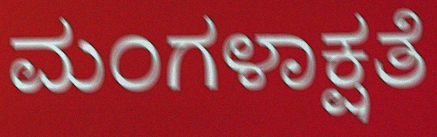
ಮಂಗಳಾಕ್ಷತೆ